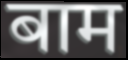
बाम